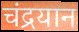
चंद्रयान